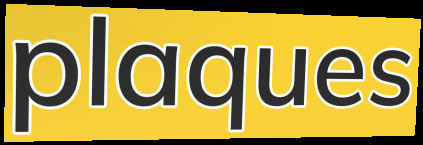
plaques